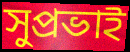
সুপ্রভাই